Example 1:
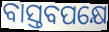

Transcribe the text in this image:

ବାସ୍ତବପକ୍ଷେ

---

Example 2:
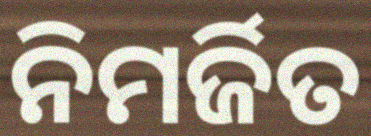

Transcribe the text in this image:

ନିମର୍ଜିତ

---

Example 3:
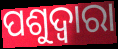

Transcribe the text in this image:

ପଶୁଦ୍ୱାରା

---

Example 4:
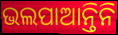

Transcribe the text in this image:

ଭଲପାଆନ୍ତିନି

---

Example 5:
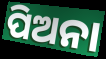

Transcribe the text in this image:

ପିଅନା